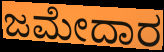
ಜಮೇದಾರ